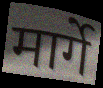
मार्गे